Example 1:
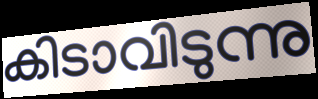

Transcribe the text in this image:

കിടാവിടുന്നു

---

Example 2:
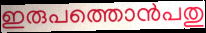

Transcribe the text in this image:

ഇരുപത്തൊൻപതു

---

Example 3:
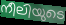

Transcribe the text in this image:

നീലിയുടെ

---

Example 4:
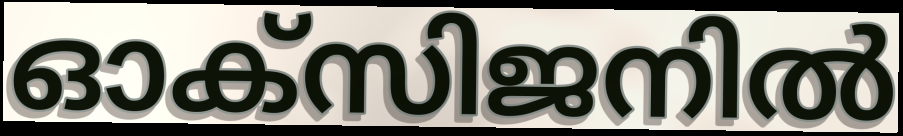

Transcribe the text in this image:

ഓക്സിജനിൽ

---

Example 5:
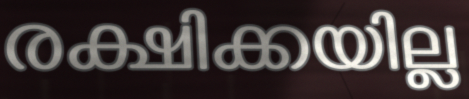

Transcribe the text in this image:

രക്ഷിക്കയില്ല